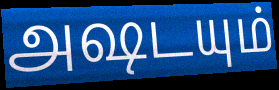
அஷடயும்